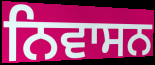
ਨਿਵਾਸਨ